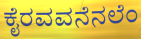
ಕೈರವವನೆನಲೆಂ